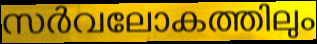
സർവലോകത്തിലും